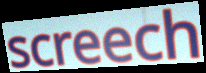
screech